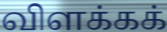
விளக்கக்